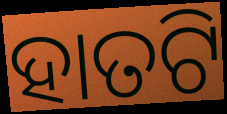
ହାତଟି